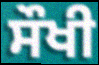
ਸੌਖੀ